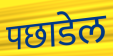
पछाडेल